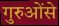
गुरुओंसे